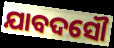
ଯାବଦସୌ